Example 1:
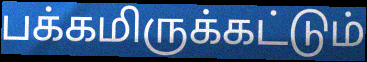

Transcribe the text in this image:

பக்கமிருக்கட்டும்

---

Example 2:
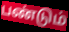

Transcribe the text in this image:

பண்டும்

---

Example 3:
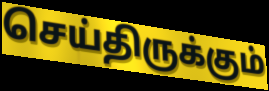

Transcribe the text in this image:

செய்திருக்கும்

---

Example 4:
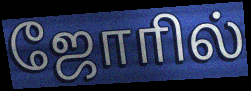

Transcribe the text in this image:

ஜோரில்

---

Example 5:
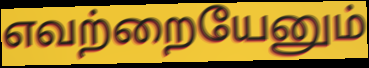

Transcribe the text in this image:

எவற்றையேனும்